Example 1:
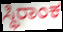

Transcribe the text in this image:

ಸ್ಥಿರಾಂಕ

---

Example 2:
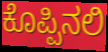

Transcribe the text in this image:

ಕೊಪ್ಪಿನಲಿ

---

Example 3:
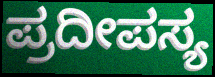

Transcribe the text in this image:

ಪ್ರದೀಪಸ್ಯ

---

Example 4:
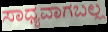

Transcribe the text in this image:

ಸಾಧ್ಯವಾಗಬಲ್ಲ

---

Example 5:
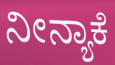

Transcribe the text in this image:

ನೀನ್ಯಾಕೆ